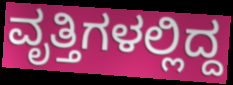
ವೃತ್ತಿಗಳಲ್ಲಿದ್ದ